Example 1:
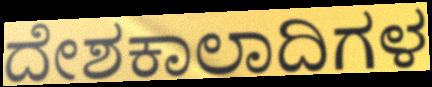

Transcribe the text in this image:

ದೇಶಕಾಲಾದಿಗಳ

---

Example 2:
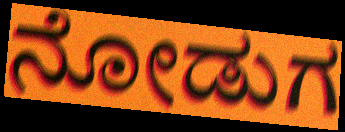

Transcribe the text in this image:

ನೋಡುಗ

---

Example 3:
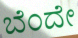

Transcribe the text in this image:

ಬೆಂದೇ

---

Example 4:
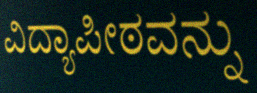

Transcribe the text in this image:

ವಿದ್ಯಾಪೀಠವನ್ನು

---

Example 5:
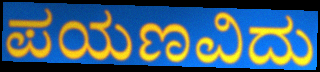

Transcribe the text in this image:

ಪಯಣವಿದು